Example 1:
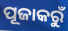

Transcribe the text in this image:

ପୂଜାକରୁଁ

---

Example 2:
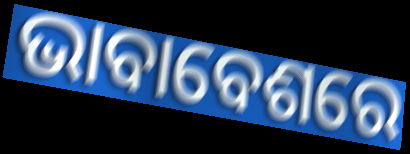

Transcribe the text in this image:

ଭାବାବେଶରେ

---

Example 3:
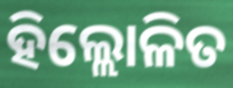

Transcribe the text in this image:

ହିଲ୍ଲୋଳିତ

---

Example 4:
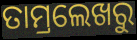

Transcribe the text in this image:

ତାମ୍ରଲେଖରୁ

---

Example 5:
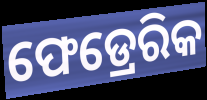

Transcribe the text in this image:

ଫେଡ୍ରେରିକ